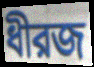
ধীরজ